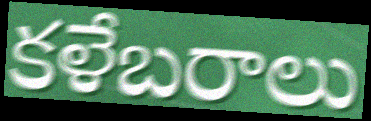
కళేబరాలు